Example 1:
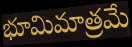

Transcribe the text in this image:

భూమిమాత్రమే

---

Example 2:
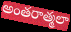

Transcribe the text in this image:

అంతరాత్మలా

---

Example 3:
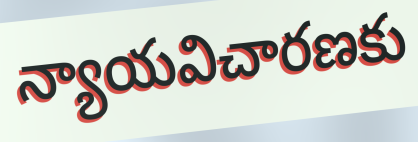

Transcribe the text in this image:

న్యాయవిచారణకు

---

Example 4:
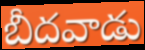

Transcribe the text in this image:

బీదవాడు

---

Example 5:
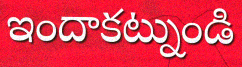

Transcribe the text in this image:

ఇందాకట్నుండి